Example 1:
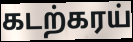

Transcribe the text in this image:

கடற்கரய்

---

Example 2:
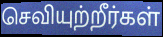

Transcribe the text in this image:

செவியுற்றீர்கள்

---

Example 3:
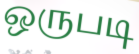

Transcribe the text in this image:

ஒருபடி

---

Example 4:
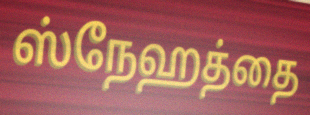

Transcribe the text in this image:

ஸ்நேஹத்தை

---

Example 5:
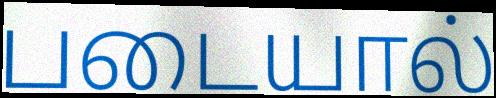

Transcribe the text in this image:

படையால்